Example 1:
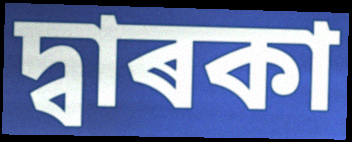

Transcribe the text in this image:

দ্বাৰকা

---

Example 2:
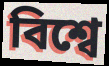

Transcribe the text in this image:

বিশ্বে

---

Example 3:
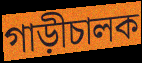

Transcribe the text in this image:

গাড়ীচালক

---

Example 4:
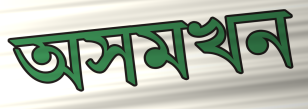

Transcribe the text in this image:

অসমখন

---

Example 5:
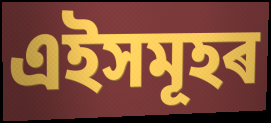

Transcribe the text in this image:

এইসমূহৰ